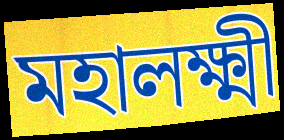
মহালক্ষ্মী